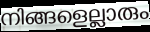
നിങ്ങളെല്ലാരും